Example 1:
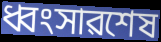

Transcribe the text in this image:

ধ্বংসাৱশেষ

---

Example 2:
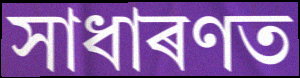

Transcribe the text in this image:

সাধাৰণত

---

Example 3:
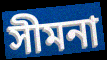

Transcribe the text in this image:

সীমনা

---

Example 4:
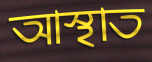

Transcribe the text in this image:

আস্থাত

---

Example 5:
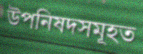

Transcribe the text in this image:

উপনিষদসমূহত